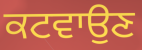
ਕਟਵਾਉਣ